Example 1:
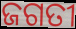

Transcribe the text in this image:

ଜଗତୀ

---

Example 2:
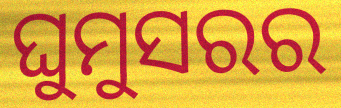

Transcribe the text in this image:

ଘୁମୁସରର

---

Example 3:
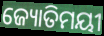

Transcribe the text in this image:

ଜ୍ୟୋତିମୟୀ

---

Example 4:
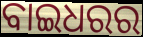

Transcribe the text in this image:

ବାଇଧରର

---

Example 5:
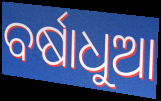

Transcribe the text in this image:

ବର୍ଷାଧୁଆ